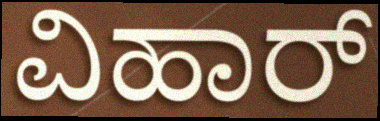
ವಿಹಾರ್